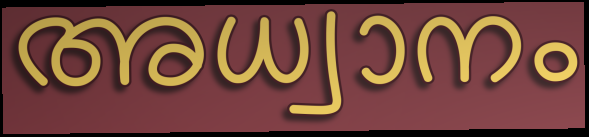
അധ്വാനം